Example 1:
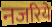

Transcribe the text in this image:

नजरिये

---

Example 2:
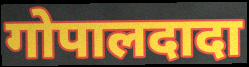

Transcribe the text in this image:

गोपालदादा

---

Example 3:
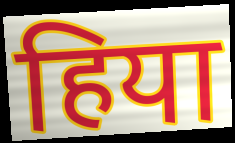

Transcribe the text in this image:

हिया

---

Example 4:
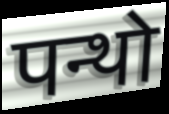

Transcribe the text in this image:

पन्थो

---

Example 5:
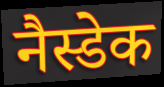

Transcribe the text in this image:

नैस्डेक